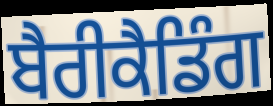
ਬੈਰੀਕੈਡਿੰਗ